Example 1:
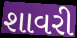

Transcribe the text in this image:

શાવરી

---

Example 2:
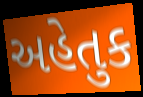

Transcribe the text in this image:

અહેતુક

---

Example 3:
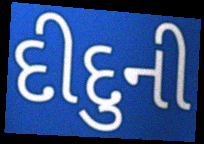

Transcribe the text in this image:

દીદુની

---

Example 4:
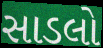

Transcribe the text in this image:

સાડલો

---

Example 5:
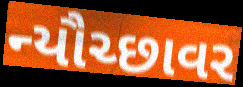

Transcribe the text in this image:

ન્યૌચ્છાવર